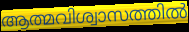
ആത്മവിശ്വാസത്തിൽ